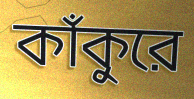
কাঁকুরে